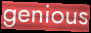
genious